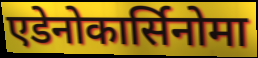
एडेनोकार्सिनोमा